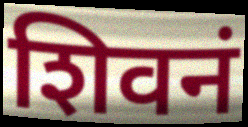
शिवनं